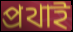
প্ৰথাই